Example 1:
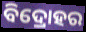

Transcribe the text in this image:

ବିଦ୍ରୋହର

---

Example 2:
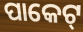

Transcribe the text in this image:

ପାକେଟ୍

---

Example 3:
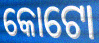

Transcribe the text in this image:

କୋଟୋ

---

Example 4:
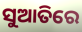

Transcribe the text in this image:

ସୁଆତିରେ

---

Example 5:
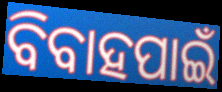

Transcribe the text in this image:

ବିବାହପାଇଁ